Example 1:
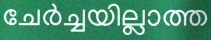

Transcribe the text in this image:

ചേർച്ചയില്ലാത്ത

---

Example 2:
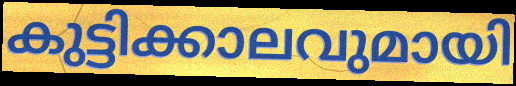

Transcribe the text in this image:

കുട്ടിക്കാലവുമായി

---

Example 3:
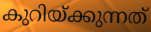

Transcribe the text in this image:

കുറിയ്ക്കുന്നത്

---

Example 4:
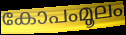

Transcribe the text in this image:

കോപംമൂലം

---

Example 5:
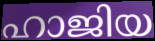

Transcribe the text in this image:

ഹാജിയ